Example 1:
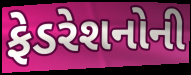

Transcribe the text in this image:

ફેડરેશનોની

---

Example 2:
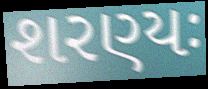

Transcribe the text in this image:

શરણ્યઃ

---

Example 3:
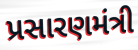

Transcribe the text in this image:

પ્રસારણમંત્રી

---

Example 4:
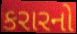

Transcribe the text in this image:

કરારનો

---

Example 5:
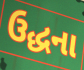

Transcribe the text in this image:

ઉદ્ધના